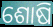
ଶୋଷି